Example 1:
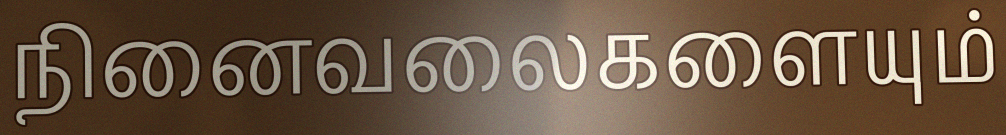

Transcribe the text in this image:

நினைவலைகளையும்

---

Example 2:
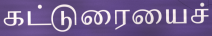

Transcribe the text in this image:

கட்டுரையைச்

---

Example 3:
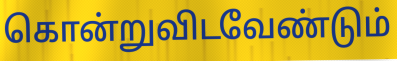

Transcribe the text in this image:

கொன்றுவிடவேண்டும்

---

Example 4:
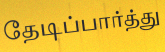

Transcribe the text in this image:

தேடிப்பார்த்து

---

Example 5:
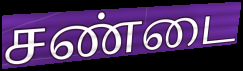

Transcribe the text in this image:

சண்டை